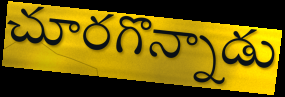
చూరగొన్నాడు